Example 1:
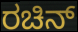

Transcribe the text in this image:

ರಚಿನ್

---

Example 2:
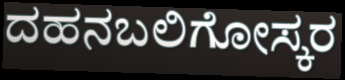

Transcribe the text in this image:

ದಹನಬಲಿಗೋಸ್ಕರ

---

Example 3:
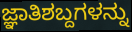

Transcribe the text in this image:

ಜ್ಞಾತಿಶಬ್ದಗಳನ್ನು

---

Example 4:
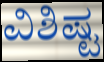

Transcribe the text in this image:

ವಿಶಿಷ್ಟ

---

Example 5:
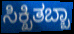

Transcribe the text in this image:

ಸಿಕ್ಖಿತಬ್ಬಾ